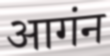
आगंन